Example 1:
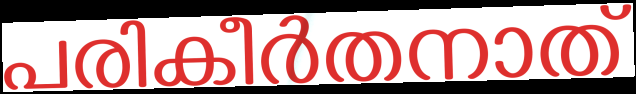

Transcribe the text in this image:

പരികീർതനാത്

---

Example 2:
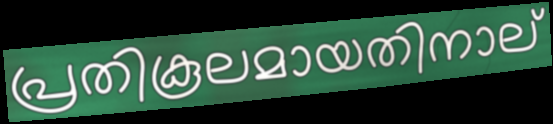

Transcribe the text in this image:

പ്രതികൂലമായതിനാല്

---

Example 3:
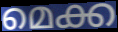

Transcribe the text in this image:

മെക്ക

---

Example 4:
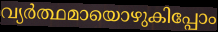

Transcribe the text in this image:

വ്യർത്ഥമായൊഴുകിപ്പോം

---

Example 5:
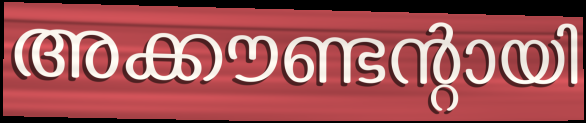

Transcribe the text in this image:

അക്കൗണ്ടന്റായി